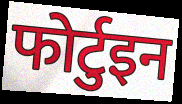
फोर्टुइन